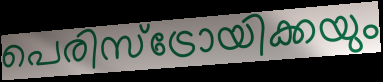
പെരിസ്ട്രോയിക്കയും